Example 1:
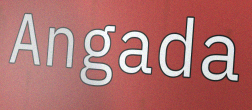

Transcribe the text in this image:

Angada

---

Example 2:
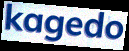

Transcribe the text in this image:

kagedo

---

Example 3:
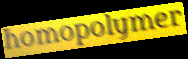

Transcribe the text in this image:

homopolymer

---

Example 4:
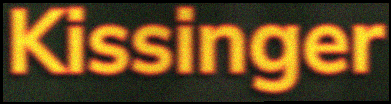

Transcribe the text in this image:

Kissinger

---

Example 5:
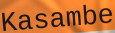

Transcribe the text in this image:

Kasambe